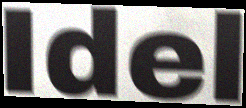
Idel